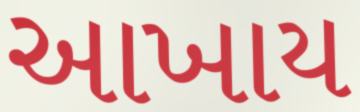
આખાય